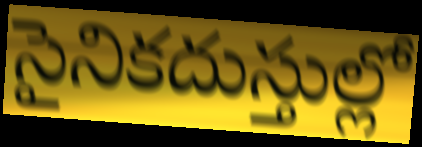
సైనికదుస్తుల్లో